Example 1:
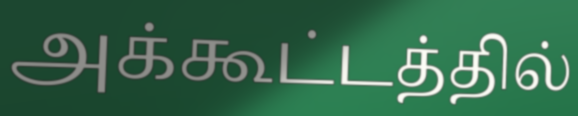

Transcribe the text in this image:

அக்கூட்டத்தில்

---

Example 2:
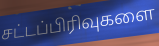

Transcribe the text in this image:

சட்டப்பிரிவுகளை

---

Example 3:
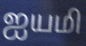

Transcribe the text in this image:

ஐயமி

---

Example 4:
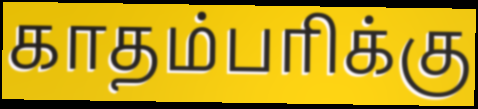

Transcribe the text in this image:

காதம்பரிக்கு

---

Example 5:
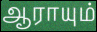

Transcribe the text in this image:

ஆராயும்